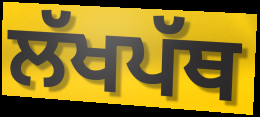
ਲੱਖਪੱਥ